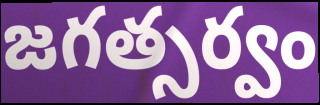
జగత్సర్వం